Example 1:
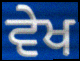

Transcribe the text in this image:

ਵੇਖ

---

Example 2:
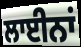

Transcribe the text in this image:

ਲਾਈਨਾਂ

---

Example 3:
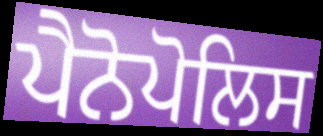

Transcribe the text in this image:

ਪੈਨੋਪੋਲਿਸ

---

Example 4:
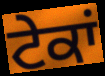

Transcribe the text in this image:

ਟੇਕਾਂ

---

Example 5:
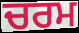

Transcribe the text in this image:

ਚਰਮ